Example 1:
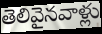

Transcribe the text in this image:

తెలివైనవాళ్లు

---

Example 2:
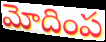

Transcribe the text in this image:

మోదింప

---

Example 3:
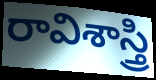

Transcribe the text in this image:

రావిశాస్త్రి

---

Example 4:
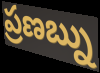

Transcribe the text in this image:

ప్రణబ్ను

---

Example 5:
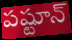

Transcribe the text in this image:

పష్టూన్